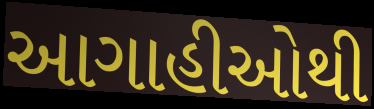
આગાહીઓથી